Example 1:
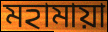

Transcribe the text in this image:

মহামায়া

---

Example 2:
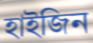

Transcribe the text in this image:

হাইজিন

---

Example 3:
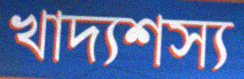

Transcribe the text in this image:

খাদ্যশস্য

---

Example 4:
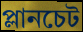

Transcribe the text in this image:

প্লানচেট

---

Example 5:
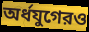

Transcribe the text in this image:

অর্ধযুগেরও